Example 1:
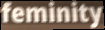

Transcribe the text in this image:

feminity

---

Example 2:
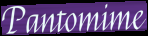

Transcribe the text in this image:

Pantomime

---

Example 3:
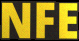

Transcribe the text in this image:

NFE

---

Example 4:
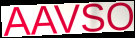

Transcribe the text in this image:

AAVSO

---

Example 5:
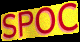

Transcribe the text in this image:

SPOC